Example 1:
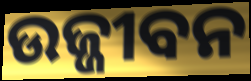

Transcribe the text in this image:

ଉଜ୍ଜୀବନ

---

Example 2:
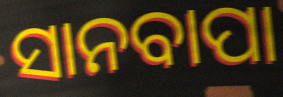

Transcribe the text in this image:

ସାନବାପା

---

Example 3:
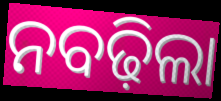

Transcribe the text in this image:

ନବଢ଼ିଲା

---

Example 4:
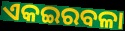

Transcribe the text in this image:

ଏକଇରବଳା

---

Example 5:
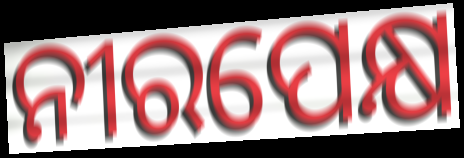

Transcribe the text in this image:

ନୀରପେକ୍ଷ